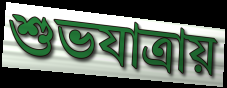
শুভযাত্রায়